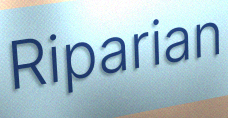
Riparian